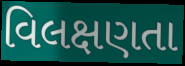
વિલક્ષણતા